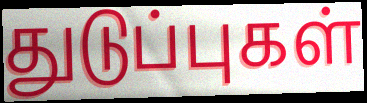
துடுப்புகள்